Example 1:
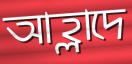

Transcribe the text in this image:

আহ্লাদে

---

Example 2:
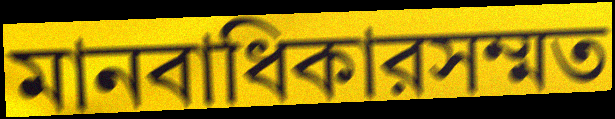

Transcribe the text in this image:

মানবাধিকারসম্মত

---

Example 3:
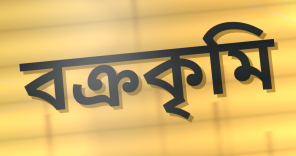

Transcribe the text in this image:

বক্রকৃমি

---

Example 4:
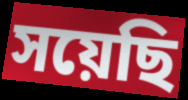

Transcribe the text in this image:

সয়েছি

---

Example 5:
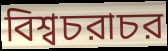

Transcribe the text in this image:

বিশ্বচরাচর